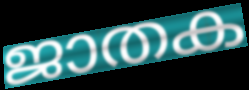
ജാതക